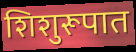
शिशुरूपात